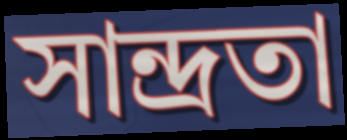
সান্দ্ৰতা